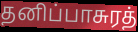
தனிப்பாசுரத்